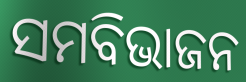
ସମବିଭାଜନ